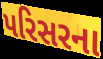
પરિસરના